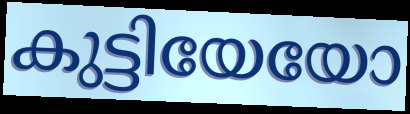
കുട്ടിയേയോ